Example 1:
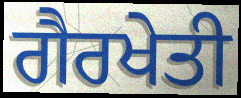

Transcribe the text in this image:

ਗੈਰਖੇਤੀ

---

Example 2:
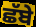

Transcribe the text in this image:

ਛੱਬੇ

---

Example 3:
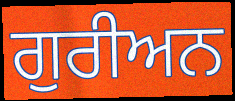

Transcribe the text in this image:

ਗੁਰੀਅਨ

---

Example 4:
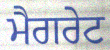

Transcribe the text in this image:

ਮੈਗਰੇਟ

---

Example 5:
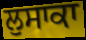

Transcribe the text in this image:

ਲੁਸਾਕਾ